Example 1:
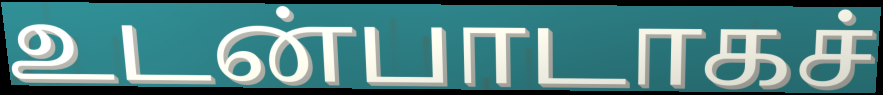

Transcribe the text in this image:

உடன்பாடாகச்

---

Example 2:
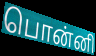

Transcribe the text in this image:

பொன்னி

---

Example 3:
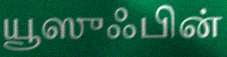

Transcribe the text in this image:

யூஸுஃபின்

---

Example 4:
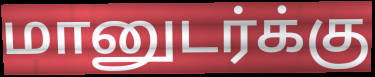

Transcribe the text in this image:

மானுடர்க்கு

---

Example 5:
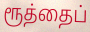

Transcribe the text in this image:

ரூத்தைப்